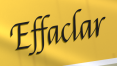
Effaclar